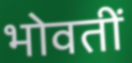
भोवतीं